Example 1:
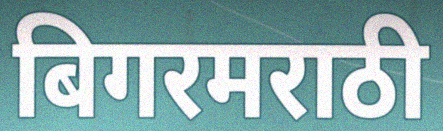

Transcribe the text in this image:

बिगरमराठी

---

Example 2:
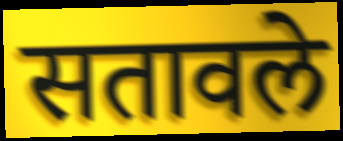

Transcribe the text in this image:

सतावले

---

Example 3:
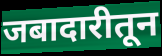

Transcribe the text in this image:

जबादारीतून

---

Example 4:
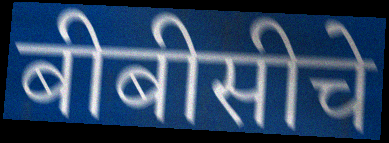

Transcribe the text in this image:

बीबीसीचे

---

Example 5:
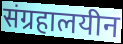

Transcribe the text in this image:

संग्रहालयीन